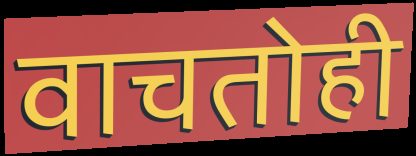
वाचतोही